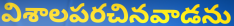
విశాలపరచినవాడను